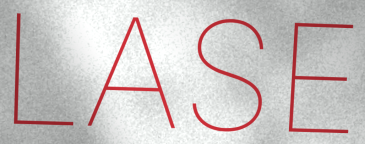
LASE